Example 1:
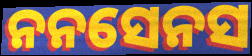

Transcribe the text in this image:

ନନସେନସ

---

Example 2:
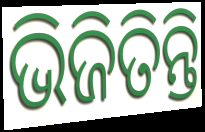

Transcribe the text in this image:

ଭିଜିତିନ୍ତି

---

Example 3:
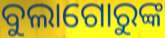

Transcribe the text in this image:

ବୁଲାଗୋରୁଙ୍କ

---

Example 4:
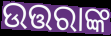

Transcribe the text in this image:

ଉତ୍ତରାଙ୍କ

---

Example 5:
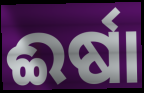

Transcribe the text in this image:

ଈର୍ଷା